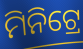
ମିନିଟ୍ରେ